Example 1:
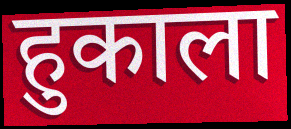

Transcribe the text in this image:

हुकाला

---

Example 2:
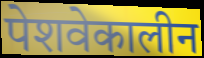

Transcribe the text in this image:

पेशवेकालीन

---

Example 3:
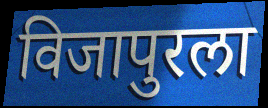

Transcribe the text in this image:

विजापुरला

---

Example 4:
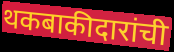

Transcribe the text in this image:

थकबाकीदारांची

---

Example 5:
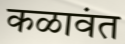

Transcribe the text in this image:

कळावंत